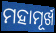
ମହାମୂର୍ଖ